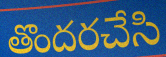
తొందరచేసి